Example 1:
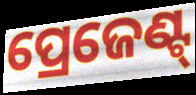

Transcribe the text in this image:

ପ୍ରେଜେଣ୍ଟ୍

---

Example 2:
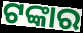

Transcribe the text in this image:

ଟଙ୍କାର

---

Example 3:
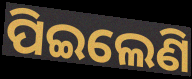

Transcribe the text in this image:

ପିଇଲେଣି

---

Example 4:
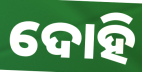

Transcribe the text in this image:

ଦୋହି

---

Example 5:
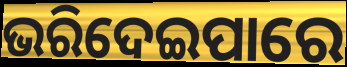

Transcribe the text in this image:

ଭରିଦେଇପାରେ